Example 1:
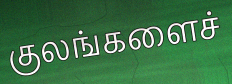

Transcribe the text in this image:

குலங்களைச்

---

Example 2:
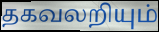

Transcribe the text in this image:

தகவலறியும்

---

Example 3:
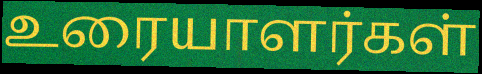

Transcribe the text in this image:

உரையாளர்கள்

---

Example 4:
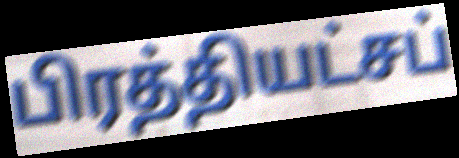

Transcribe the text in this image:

பிரத்தியட்சப்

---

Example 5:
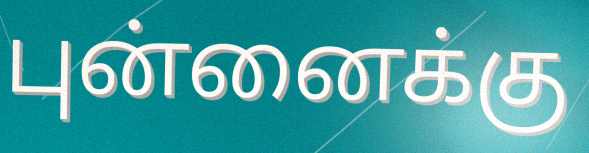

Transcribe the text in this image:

புன்னைக்கு